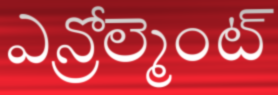
ఎన్రోల్మెంట్